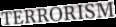
TERRORISM